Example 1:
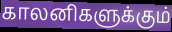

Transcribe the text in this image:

காலனிகளுக்கும்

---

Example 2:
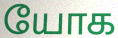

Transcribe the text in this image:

யோக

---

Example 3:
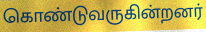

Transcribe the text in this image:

கொண்டுவருகின்றனர்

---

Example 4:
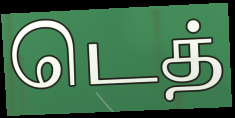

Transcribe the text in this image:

டெத்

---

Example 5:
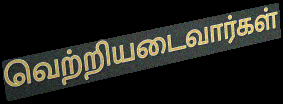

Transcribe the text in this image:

வெற்றியடைவார்கள்